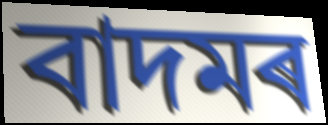
বাদমৰ